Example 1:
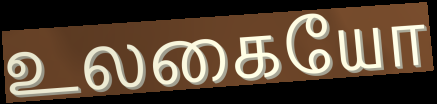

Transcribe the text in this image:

உலகையோ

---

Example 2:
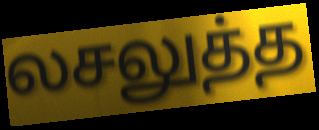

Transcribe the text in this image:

லசலுத்த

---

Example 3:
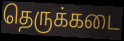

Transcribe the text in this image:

தெருக்கடை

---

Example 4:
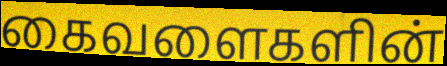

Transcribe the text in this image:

கைவளைகளின்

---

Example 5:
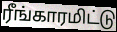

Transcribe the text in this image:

ரீங்காரமிட்டு